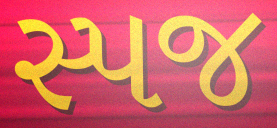
સ્પજ